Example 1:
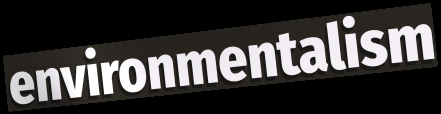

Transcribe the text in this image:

environmentalism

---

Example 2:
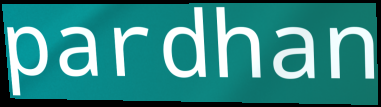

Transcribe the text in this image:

pardhan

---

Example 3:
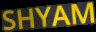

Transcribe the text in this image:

SHYAM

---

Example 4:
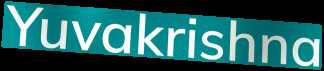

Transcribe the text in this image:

Yuvakrishna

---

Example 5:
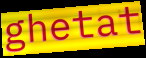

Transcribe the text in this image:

ghetat